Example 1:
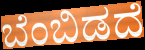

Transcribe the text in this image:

ಬೆಂಬಿಡದೆ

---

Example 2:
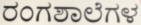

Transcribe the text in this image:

ರಂಗಶಾಲೆಗಳ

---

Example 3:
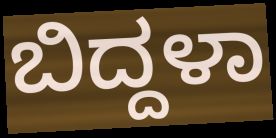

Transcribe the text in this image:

ಬಿದ್ದಳಾ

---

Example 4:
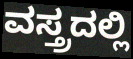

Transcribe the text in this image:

ವಸ್ತ್ರದಲ್ಲಿ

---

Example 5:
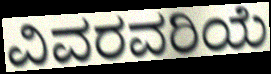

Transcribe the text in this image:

ವಿವರವರಿಯೆ